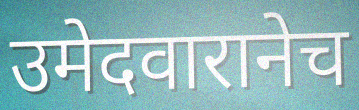
उमेदवारानेच